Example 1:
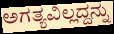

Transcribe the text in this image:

ಅಗತ್ಯವಿಲ್ಲದ್ದನ್ನು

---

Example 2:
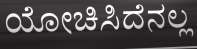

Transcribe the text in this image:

ಯೋಚಿಸಿದೆನಲ್ಲ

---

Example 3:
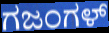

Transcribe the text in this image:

ಗಜಂಗಳ್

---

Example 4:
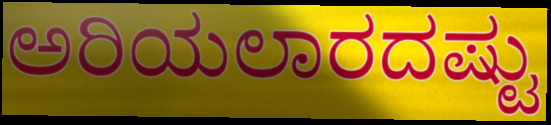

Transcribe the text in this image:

ಅರಿಯಲಾರದಷ್ಟು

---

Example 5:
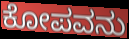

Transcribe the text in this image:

ಕೋಪವನು